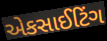
એકસાઈટિંગ